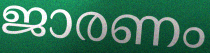
ജാരണം